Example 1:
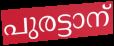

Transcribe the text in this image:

പുരട്ടാന്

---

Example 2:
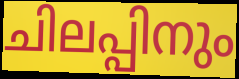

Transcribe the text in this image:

ചിലപ്പിനും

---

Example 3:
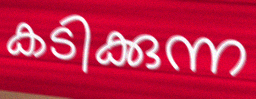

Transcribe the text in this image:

കടിക്കുന്ന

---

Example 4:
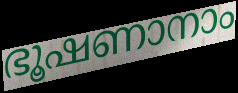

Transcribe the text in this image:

ഭൂഷണാനാം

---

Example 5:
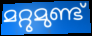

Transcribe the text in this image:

മറ്റുമുണ്ട്